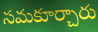
సమకూర్చారు